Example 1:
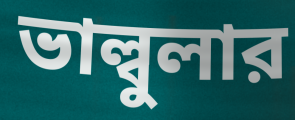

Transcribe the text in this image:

ভাল্বুলার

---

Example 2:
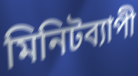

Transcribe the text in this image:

মিনিটব্যাপী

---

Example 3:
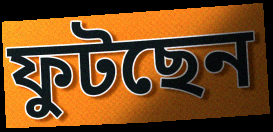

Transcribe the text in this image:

ফুটছেন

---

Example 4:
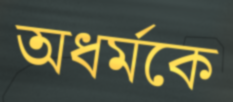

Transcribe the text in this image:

অধর্মকে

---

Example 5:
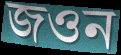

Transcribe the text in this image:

জওন